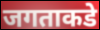
जगताकडे